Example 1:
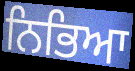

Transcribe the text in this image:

ਨਿਭਿਆ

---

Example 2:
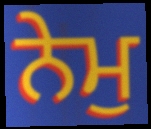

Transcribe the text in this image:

ਨੇਮੁ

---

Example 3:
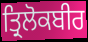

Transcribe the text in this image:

ਤ੍ਰਿਲੋਕਬੀਰ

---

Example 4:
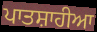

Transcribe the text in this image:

ਪਾਤਸ਼ਾਹੀਆ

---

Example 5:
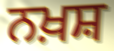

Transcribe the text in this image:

ਨਖ਼ਸ਼